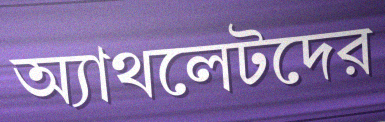
অ্যাথলেটদের